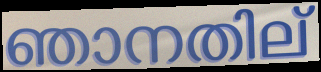
ഞാനതില്